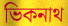
ভিকনাথ